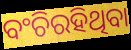
ବଂଚିରହିଥିବା